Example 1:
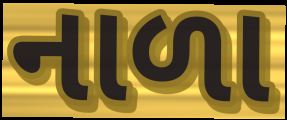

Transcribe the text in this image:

નાળા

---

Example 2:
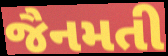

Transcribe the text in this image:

જૈનમતી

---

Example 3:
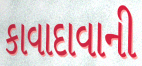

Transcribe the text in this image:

કાવાદાવાની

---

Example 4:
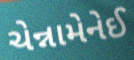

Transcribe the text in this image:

ચેન્નામેનેઈ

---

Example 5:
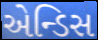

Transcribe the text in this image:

એન્ડિસ